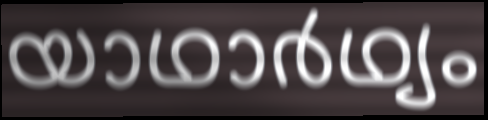
യാഥാർഥ്യം